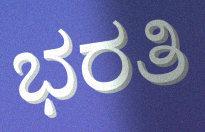
ಭರತಿ